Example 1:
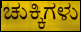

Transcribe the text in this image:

ಚುಕ್ಕಿಗಳು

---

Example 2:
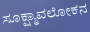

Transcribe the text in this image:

ಸೂಕ್ಷ್ಮಾವಲೋಕನ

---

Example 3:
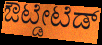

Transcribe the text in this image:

ಔಟ್ಡೇಟೆಡ್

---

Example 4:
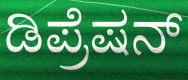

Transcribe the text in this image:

ಡಿಪ್ರೆಷನ್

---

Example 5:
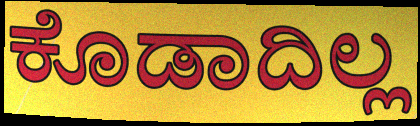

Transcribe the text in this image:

ಕೊಡಾದಿಲ್ಲ